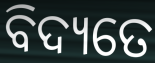
ବିଦ୍ୟତେ